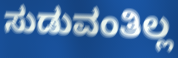
ಸುಡುವಂತಿಲ್ಲ